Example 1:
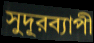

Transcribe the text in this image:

সুদূরব্যাপী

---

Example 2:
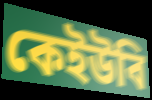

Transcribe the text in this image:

কেইউবি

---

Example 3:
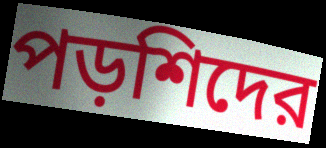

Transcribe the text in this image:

পড়শিদের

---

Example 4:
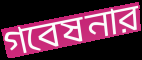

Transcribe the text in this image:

গবেষনার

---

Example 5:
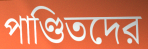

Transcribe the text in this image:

পাণ্ডিতদের